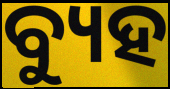
ବ୍ୟୁହ